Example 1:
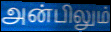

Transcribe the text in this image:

அன்பிலும்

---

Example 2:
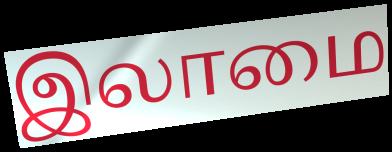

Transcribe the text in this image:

இலாமை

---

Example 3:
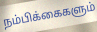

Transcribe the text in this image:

நம்பிக்கைகளும்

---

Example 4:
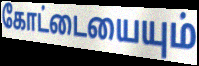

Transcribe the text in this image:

கோட்டையையும்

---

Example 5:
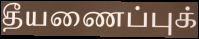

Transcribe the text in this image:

தீயணைப்புக்